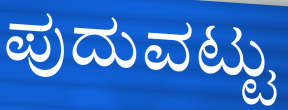
ಪುದುವಟ್ಟು